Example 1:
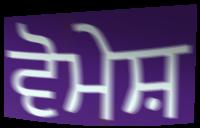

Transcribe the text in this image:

ਵੋਮੇਸ਼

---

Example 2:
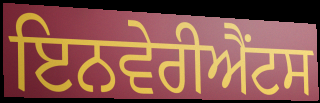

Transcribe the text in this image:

ਇਨਵੇਰੀਐਂਟਸ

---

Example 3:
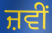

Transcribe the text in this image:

ਜ਼ਵੀਂ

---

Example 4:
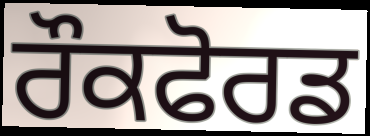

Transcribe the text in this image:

ਰੌਕਫੋਰਡ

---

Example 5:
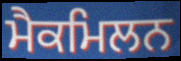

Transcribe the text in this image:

ਮੈਕਮਿਲਨ